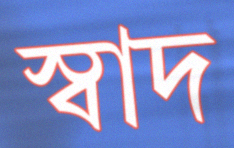
স্বাদ